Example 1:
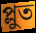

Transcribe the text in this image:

প্লুত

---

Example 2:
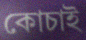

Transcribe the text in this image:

কোচাই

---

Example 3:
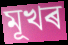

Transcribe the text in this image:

মূখৰ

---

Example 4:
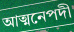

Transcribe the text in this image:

আত্মনেপদী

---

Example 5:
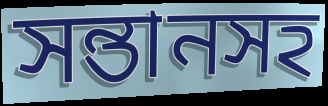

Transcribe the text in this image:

সন্তানসহ